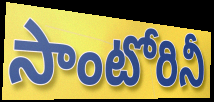
సాంటోరినీ